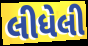
લીધેલી